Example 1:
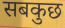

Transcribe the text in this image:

सबकुछ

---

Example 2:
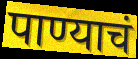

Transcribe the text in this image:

पाण्याचं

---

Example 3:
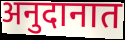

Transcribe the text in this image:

अनुदानात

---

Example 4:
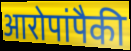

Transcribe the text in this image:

आरोपांपैकी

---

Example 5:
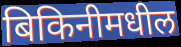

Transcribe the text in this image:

बिकिनीमधील